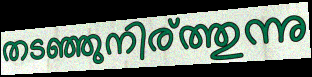
തടഞ്ഞുനിര്ത്തുന്നു